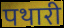
पथारी